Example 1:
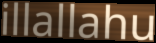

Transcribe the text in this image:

illallahu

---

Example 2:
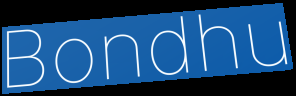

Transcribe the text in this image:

Bondhu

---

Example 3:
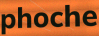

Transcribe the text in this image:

phoche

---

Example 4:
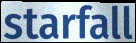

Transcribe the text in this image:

starfall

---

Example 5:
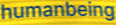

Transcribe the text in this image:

humanbeing